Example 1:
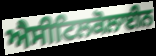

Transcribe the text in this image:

ਐਸੀਟਿਲਕੋਲਾਈਨ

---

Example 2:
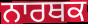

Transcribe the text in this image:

ਨਾਰਥਕ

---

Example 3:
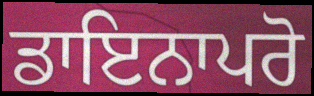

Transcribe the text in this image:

ਡਾਇਨਾਪਰੋ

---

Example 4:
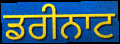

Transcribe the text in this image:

ਡਰੀਨਾਟ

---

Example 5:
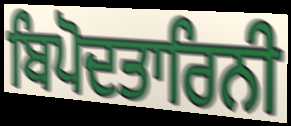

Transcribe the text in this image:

ਬਿਪੋਦਤਾਰਿਨੀ